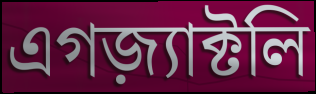
এগজ়্যাক্টলি